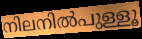
നിലനിൽപുള്ളൂ